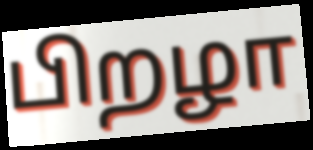
பிறழா